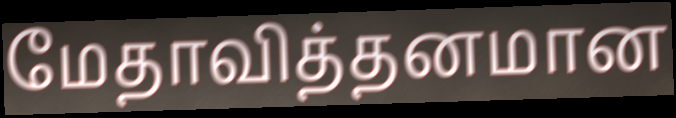
மேதாவித்தனமான